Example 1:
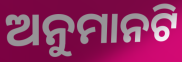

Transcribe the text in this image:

ଅନୁମାନଟି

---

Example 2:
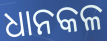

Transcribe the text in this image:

ଧାନକଳ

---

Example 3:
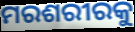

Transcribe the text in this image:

ମରଶରୀରକୁ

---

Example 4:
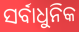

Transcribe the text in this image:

ସର୍ବାଧୁନିକ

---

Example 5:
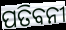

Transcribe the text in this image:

ପତିବନୀ